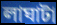
লাঘাটা